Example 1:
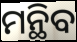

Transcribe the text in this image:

ମନ୍ଥିବ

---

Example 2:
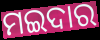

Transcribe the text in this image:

ମଇଦାର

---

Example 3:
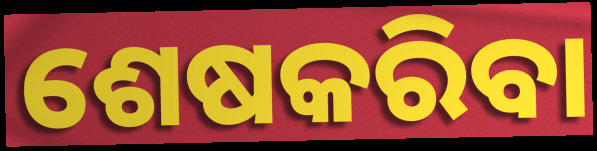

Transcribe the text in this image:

ଶେଷକରିବା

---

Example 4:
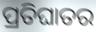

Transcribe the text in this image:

ପ୍ରତିଘାତର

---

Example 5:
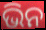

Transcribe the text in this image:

ଭିନ